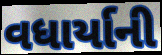
વધાર્યાની